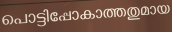
പൊട്ടിപ്പോകാത്തതുമായ